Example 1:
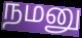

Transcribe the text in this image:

நமனு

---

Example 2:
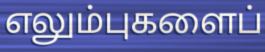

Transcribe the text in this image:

எலும்புகளைப்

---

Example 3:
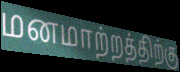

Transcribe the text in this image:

மனமாற்றத்திற்கு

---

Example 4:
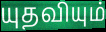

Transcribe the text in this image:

யுதவியும்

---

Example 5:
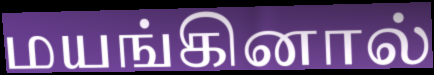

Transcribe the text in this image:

மயங்கினால்